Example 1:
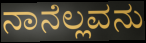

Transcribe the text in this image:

ನಾನೆಲ್ಲವನು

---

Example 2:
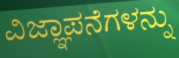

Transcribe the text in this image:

ವಿಜ್ಞಾಪನೆಗಳನ್ನು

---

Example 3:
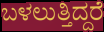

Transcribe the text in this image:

ಬಳಲುತ್ತಿದ್ದರೆ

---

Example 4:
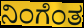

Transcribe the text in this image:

ನಿಂಗೆಂತ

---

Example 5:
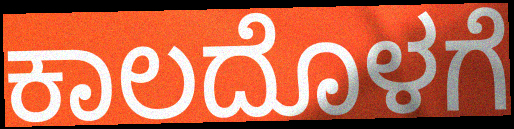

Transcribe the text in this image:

ಕಾಲದೊಳಗೆ